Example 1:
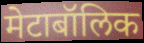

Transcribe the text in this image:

मेटाबॉलिक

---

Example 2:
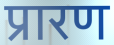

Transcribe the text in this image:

प्रारण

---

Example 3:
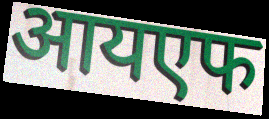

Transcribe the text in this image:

आयएफ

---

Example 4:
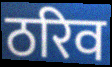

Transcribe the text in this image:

ठरिव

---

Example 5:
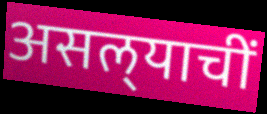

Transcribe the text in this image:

असल्याचीं